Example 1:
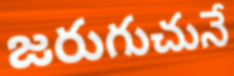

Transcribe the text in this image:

జరుగుచునే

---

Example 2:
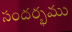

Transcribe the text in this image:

సందర్భము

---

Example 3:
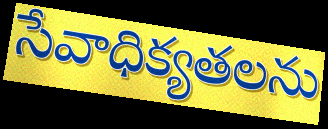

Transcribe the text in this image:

సేవాధిక్యతలను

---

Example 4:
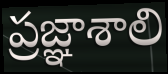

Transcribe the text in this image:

ప్రజ్ఞాశాలి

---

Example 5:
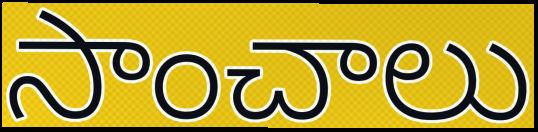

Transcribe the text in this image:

సాంచాలు